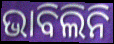
ଭାବିଲିନି